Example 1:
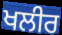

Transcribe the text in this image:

ਖਲੀਰ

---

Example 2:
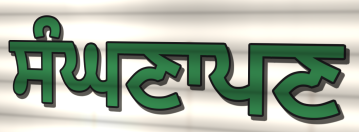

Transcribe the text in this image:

ਸੰਘਣਾਪਣ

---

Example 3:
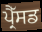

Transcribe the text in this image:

ਪ੍ਰੈੱਸਡ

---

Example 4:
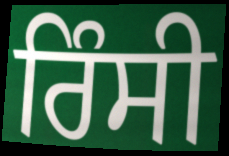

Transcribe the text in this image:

ਰਿੰਸੀ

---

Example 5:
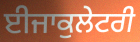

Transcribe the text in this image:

ਈਜਾਕੁਲੇਟਰੀ